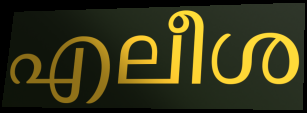
എലീശ